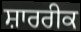
ਸ਼ਾਰਰੀਕ